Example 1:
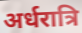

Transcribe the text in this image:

अर्धरात्रि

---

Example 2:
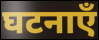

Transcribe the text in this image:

घटनाएँ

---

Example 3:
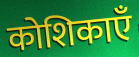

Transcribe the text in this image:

कोशिकाएँ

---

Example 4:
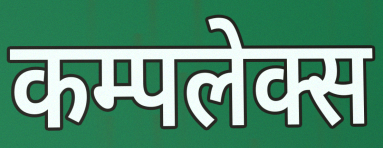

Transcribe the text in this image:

कम्पलेक्स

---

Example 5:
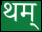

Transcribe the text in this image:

थम्